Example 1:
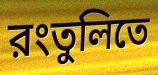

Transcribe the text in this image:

রংতুলিতে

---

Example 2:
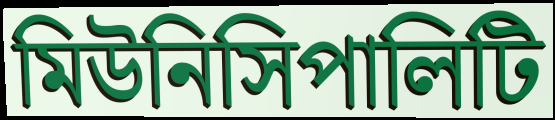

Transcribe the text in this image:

মিউনিসিপালিটি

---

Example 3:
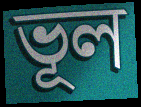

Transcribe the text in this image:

ভূল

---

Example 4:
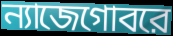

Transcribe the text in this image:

ন্যাজেগোবরে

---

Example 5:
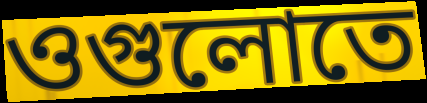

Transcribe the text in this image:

ওগুলোতে